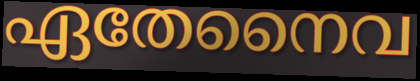
ഏതേനൈവ